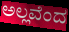
ಅಲ್ಲವೆಂದ